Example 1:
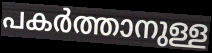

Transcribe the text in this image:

പകർത്താനുള്ള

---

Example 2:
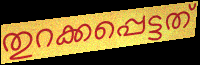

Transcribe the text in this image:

തുറക്കപ്പെട്ടത്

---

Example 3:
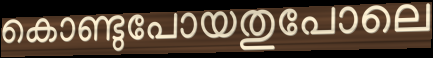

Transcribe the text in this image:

കൊണ്ടുപോയതുപോലെ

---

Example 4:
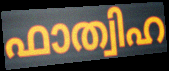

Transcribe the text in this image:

ഫാത്വിഹ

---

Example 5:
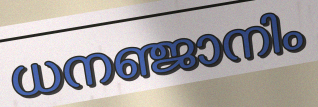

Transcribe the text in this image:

ധനഞ്ജാനിം